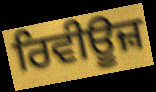
ਰਿਵੀਊਜ਼